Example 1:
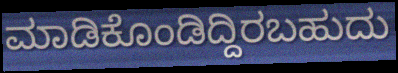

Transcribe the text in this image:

ಮಾಡಿಕೊಂಡಿದ್ದಿರಬಹುದು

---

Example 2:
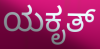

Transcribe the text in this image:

ಯಕೃತ್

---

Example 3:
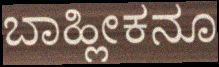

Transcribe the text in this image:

ಬಾಹ್ಲೀಕನೂ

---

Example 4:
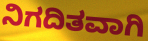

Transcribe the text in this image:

ನಿಗದಿತವಾಗಿ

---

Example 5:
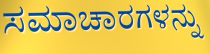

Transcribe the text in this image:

ಸಮಾಚಾರಗಳನ್ನು